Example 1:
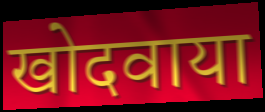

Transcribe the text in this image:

खोदवाया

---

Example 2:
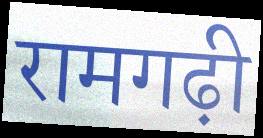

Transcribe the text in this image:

रामगढ़ी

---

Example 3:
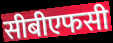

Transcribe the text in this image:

सीबीएफसी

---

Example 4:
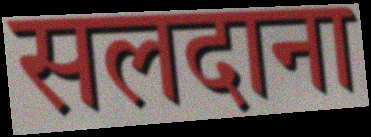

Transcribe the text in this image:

सलदाना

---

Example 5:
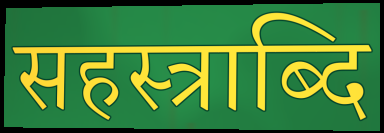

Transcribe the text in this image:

सहस्त्राब्दि